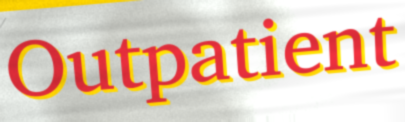
Outpatient